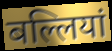
बल्लियां